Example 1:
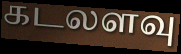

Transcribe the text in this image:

கடலளவு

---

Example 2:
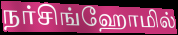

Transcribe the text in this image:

நர்சிங்ஹோமில்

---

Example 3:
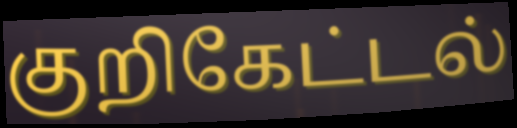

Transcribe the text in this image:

குறிகேட்டல்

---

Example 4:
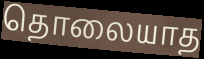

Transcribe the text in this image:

தொலையாத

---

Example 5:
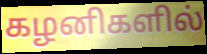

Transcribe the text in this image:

கழனிகளில்